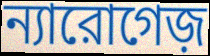
ন্যারোগেজ়